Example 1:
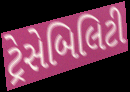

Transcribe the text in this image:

ટ્રેસેબિલિટી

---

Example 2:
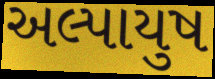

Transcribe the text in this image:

અલ્પાયુષ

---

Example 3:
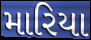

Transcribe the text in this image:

મારિયા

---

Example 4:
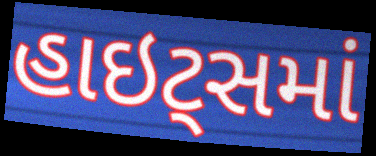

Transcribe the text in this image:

હાઇટ્સમાં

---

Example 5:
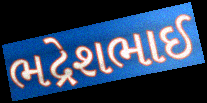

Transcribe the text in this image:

ભદ્રેશભાઈ